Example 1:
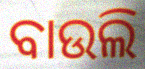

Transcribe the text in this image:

ବାଉଲି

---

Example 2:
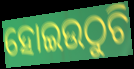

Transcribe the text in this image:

ହୋଇଉଠୁଚି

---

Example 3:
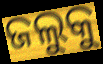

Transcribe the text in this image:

ଜଲୁକୁ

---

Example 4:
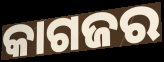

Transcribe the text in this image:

କାଗଜର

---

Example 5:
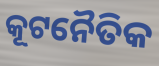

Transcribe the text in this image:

କୂଟନୈତିକ